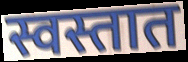
स्वस्तात